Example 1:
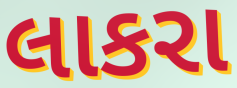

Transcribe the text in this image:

લાકરા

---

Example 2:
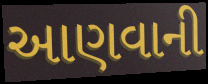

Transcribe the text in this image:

આણવાની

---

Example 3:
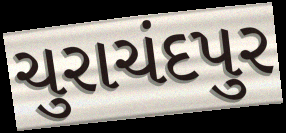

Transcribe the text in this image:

ચુરાચંદપુર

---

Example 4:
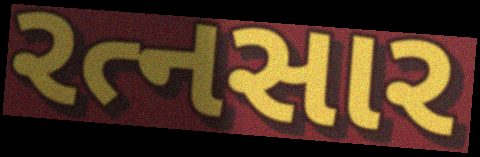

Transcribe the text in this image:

રત્નસાર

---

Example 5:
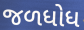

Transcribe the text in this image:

જળધોધ